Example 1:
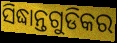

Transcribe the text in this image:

ସିଦ୍ଧାନ୍ତଗୁଡିକର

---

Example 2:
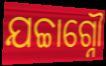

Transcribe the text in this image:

ଯଚ୍ଚାଗ୍ନୌ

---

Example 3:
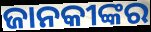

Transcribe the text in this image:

ଜାନକୀଙ୍କର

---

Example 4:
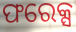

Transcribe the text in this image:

ଫରେକ୍ସ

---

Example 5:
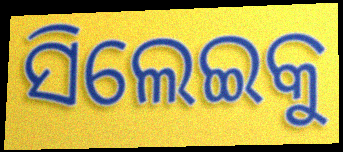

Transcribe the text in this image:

ସିଲେଇକୁ